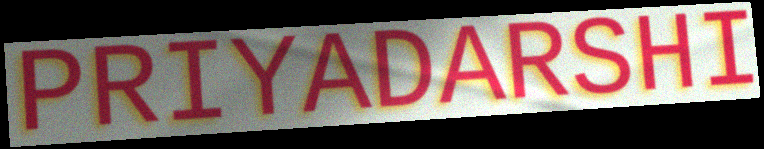
PRIYADARSHI